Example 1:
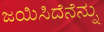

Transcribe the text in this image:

ಜಯಿಸಿದೆನೆನ್ನು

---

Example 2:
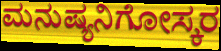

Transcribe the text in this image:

ಮನುಷ್ಯನಿಗೋಸ್ಕರ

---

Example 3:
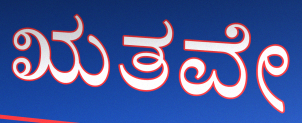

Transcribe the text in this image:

ಋತವೇ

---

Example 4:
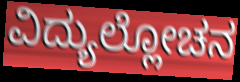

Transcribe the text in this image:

ವಿದ್ಯುಲ್ಲೋಚನ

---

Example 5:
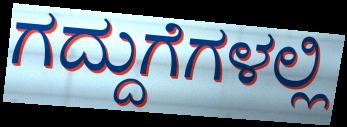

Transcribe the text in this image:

ಗದ್ದುಗೆಗಳಲ್ಲಿ